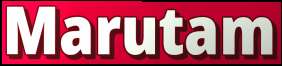
Marutam